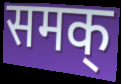
समक्